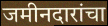
जमीनदारांचा